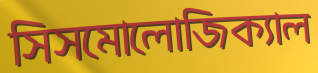
সিসমোলোজিক্যাল